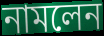
নামলেন